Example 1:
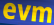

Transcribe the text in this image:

evm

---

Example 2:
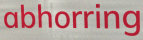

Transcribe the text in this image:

abhorring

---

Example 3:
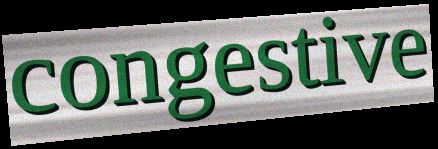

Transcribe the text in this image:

congestive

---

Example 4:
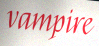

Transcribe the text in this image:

vampire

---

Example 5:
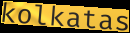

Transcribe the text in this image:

kolkatas